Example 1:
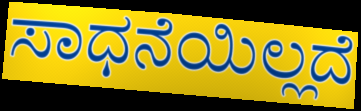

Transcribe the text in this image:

ಸಾಧನೆಯಿಲ್ಲದೆ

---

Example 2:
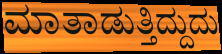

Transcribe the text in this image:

ಮಾತಾಡುತ್ತಿದ್ದುದು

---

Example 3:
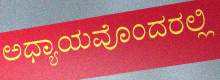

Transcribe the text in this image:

ಅಧ್ಯಾಯವೊಂದರಲ್ಲಿ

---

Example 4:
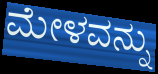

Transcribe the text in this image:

ಮೇಳವನ್ನು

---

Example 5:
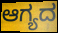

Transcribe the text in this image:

ಆಗ್ಯದ